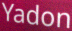
Yadon